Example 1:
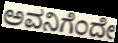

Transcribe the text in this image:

ಅವನಿಗೆಂದೇ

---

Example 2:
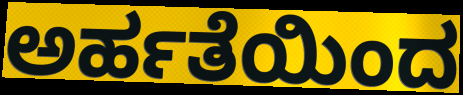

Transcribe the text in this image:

ಅರ್ಹತೆಯಿಂದ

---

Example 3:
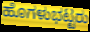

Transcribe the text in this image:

ಹೊಗಳುಭಟ್ಟರು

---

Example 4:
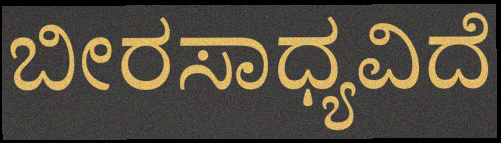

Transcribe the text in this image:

ಬೀರಸಾಧ್ಯವಿದೆ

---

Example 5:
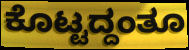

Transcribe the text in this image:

ಕೊಟ್ಟದ್ದಂತೂ